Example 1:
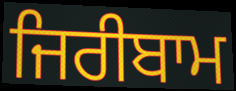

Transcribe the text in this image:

ਜਿਰੀਬਾਮ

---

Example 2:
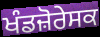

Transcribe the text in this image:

ਖੰਡਜ਼ੋਰੇਸਕ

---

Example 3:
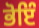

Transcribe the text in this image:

ਭੋਇੰ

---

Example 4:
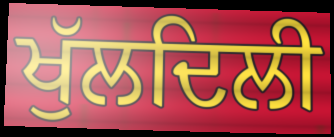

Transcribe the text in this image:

ਖੁੱਲਦਿਲੀ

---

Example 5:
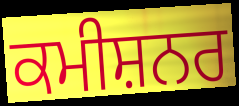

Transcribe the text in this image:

ਕਮੀਸ਼ਨਰ